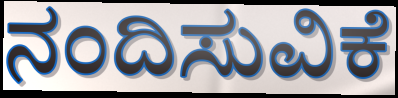
ನಂದಿಸುವಿಕೆ